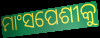
ମାଂସପେଶୀକୁ